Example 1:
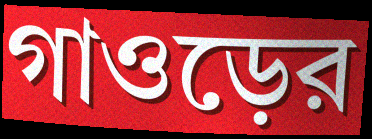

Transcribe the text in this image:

গাওড়ের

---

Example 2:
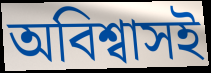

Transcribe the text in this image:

অবিশ্বাসই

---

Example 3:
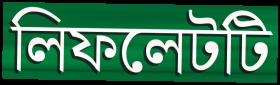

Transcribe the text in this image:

লিফলেটটি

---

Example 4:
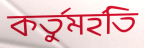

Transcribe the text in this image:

কর্তুমর্হতি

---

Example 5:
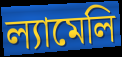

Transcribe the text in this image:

ল্যামেলি